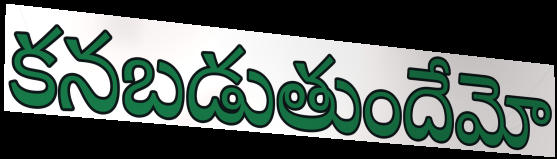
కనబడుతుందేమో